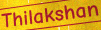
Thilakshan